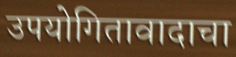
उपयोगितावादाचा